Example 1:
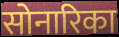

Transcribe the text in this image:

सोनारिका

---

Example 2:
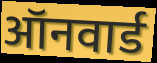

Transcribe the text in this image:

ऑनवार्ड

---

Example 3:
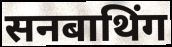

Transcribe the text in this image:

सनबाथिंग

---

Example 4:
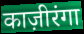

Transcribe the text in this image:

काज़ीरंगा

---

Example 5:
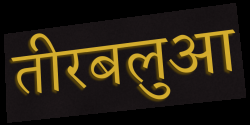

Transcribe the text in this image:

तीरबलुआ